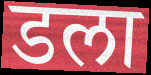
डला